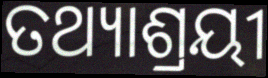
ତଥ୍ୟାଶ୍ରୟୀ